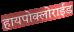
हायपोक्लोराईड